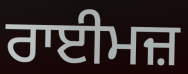
ਰਾਈਮਜ਼